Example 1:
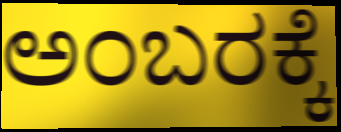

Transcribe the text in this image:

ಅಂಬರಕ್ಕೆ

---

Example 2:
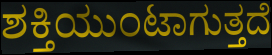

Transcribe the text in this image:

ಶಕ್ತಿಯುಂಟಾಗುತ್ತದೆ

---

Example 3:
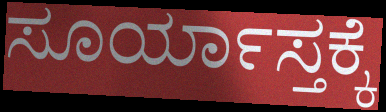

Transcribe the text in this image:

ಸೂರ್ಯಾಸ್ತಕ್ಕೆ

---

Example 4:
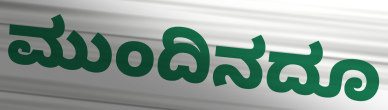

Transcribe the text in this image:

ಮುಂದಿನದೂ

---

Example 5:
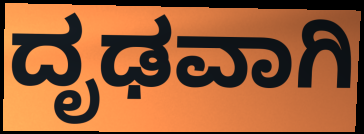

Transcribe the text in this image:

ದೃಢವಾಗಿ